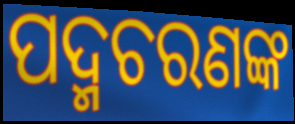
ପଦ୍ମଚରଣଙ୍କ